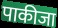
पाकीजा